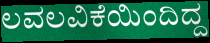
ಲವಲವಿಕೆಯಿಂದಿದ್ದ